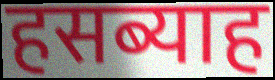
हसब्याह